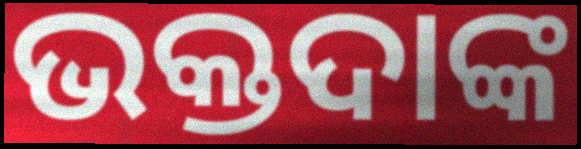
ଭକ୍ତଦାଙ୍କ